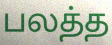
பலத்த